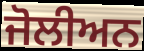
ਜੋਲੀਅਨ